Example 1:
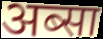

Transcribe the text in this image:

अब्सा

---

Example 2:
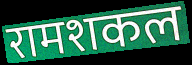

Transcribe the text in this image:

रामशकल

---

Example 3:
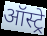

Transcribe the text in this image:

ऑस्ट्रे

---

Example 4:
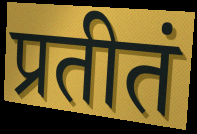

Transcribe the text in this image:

प्रतीतं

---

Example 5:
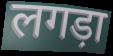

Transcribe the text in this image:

लगड़ा